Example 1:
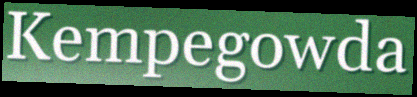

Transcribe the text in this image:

Kempegowda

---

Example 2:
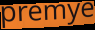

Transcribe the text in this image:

premye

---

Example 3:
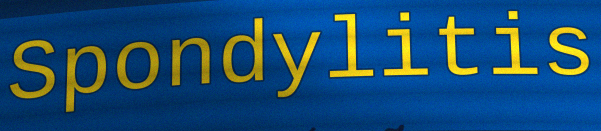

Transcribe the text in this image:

Spondylitis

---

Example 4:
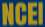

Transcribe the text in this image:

NCEI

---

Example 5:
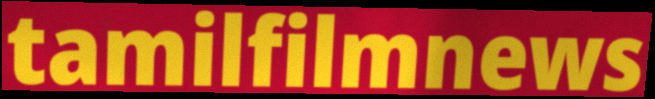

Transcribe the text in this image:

tamilfilmnews